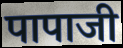
पापाजी